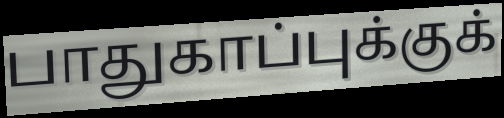
பாதுகாப்புக்குக்